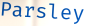
Parsley